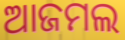
ଆଜମଲ